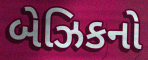
બેઝિકનો